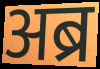
अब्र